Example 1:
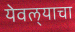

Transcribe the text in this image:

येवल्याचा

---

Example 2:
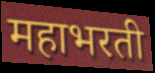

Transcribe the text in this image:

महाभरती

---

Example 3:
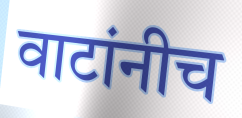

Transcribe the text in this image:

वाटांनीच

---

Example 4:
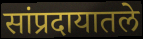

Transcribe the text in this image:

सांप्रदायातले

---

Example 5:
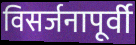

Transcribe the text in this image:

विसर्जनापूर्वी